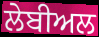
ਲੇਬੀਅਲ